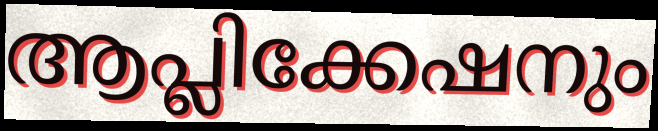
ആപ്ലിക്കേഷനും